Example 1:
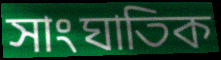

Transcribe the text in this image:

সাংঘাতিক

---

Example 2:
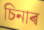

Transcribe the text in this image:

চিনাৰ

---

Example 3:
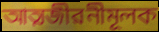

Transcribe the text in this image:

আত্মজীৱনীমূলক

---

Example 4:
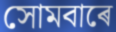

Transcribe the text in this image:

সোমবাৰে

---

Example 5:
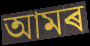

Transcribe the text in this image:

আমৰ